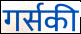
गर्सकी